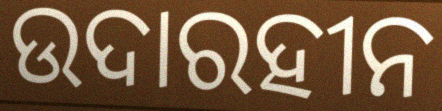
ଉଦାରହୀନ